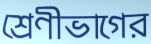
শ্রেণীভাগের